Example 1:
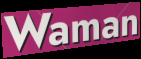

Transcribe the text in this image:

Waman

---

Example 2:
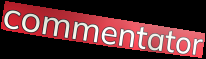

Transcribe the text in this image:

commentator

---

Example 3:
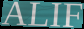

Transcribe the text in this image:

ALIF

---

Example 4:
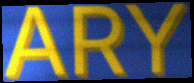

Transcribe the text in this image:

ARY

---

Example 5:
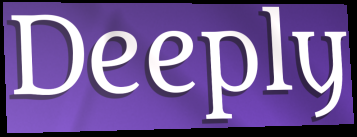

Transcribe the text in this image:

Deeply